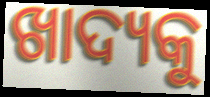
ଖାଦ୍ୟକୁ